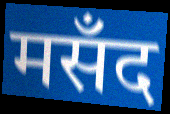
मसँद